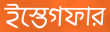
ইস্তেগফার